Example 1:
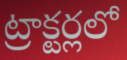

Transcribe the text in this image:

ట్రాక్టర్లలో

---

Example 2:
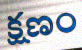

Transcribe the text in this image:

క్షణం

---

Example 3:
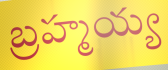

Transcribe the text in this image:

బ్రహ్మయ్య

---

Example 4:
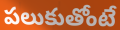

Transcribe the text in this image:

పలుకుతోంటే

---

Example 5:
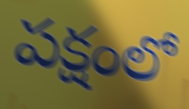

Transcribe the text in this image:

పక్షంలో